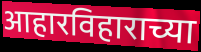
आहारविहाराच्या